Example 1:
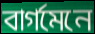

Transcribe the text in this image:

বাৰ্গমেনে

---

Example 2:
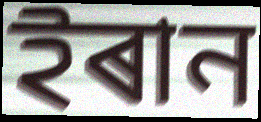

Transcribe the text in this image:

ইৰান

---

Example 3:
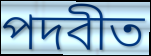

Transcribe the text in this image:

পদবীত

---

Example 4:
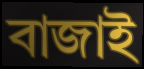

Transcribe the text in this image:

বাজাই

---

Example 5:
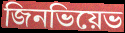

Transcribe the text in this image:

জিনভিয়েভ